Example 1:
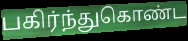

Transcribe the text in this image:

பகிர்ந்துகொண்ட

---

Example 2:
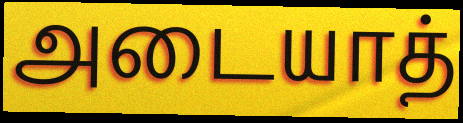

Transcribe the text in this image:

அடையாத்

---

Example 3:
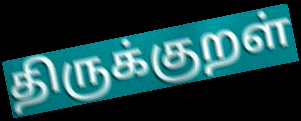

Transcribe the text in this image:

திருக்குறள்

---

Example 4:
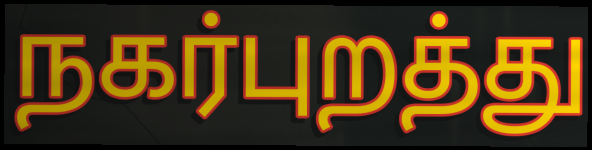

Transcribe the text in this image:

நகர்புறத்து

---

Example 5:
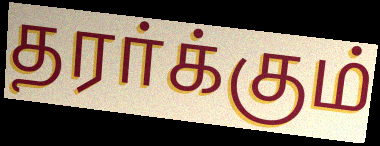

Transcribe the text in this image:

தரர்க்கும்